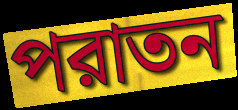
পরাতন